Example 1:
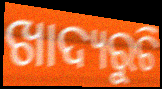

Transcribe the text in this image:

ଖାଦ୍ୟରୁଚି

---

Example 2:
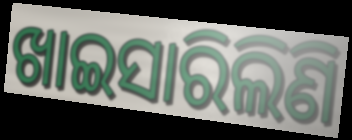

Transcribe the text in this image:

ଖାଇସାରିଲିଣି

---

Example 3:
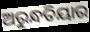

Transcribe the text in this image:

ଅରୁନ୍ଧତିୟାର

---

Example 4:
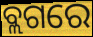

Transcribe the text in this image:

ବ୍ଲଗରେ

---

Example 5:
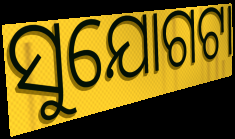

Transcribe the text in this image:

ସୁଯୋଗଟା